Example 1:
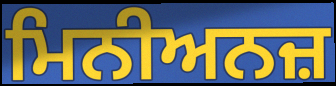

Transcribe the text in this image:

ਮਿਨੀਅਨਜ਼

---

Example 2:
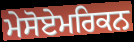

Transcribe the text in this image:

ਮੇਸੋਏਮਰਿਕਨ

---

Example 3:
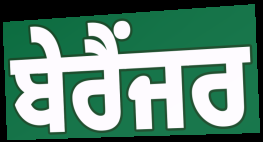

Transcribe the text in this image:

ਬੇਰੈਂਜਰ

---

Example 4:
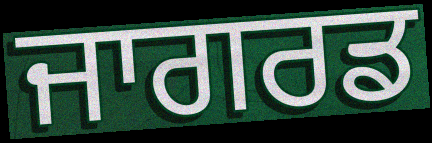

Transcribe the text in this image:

ਜਾਗਰਡ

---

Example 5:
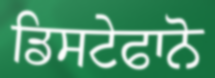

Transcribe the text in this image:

ਡਿਸਟੇਫਾਨੋ